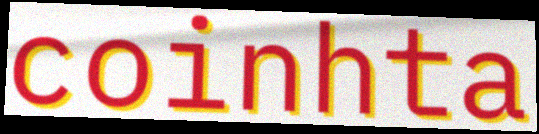
coinhta